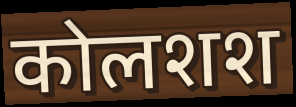
कोलशश